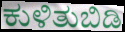
ಕುಳಿತುಬಿಡಿ